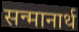
सन्मानार्थ